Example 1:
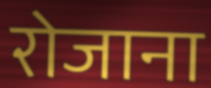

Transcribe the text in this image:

रोजाना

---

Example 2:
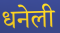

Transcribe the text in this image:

धनेली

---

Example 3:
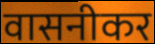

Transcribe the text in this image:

वासनीकर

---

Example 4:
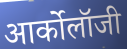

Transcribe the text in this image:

आर्कोलॉजी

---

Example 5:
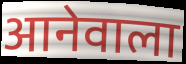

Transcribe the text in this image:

आनेवाला